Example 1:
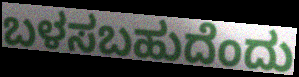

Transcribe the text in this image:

ಬಳಸಬಹುದೆಂದು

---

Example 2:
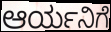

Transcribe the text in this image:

ಆರ್ಯನಿಗೆ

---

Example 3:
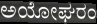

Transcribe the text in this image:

ಅಯೋಘರಂ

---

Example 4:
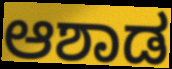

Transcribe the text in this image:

ಆಶಾಡ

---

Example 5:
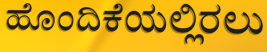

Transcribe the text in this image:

ಹೊಂದಿಕೆಯಲ್ಲಿರಲು